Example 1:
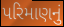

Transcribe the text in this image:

પરિમાણનું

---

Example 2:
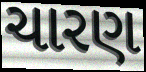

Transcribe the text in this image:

ચારણ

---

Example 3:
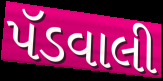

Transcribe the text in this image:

પૅડવાલી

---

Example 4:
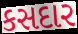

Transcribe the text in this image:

કસદાર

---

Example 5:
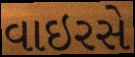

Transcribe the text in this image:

વાઇરસે